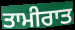
ਤਾਮੀਰਾਤ